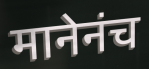
मानेनंच